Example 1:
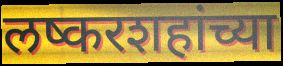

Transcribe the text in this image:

लष्करशहांच्या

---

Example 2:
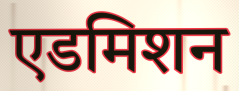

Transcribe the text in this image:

एडमिशन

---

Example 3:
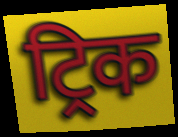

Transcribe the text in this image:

ट्रिक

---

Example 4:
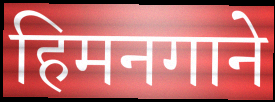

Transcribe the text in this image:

हिमनगाने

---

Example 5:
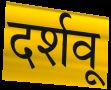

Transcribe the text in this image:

दर्शवू